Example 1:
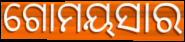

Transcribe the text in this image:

ଗୋମୟସାର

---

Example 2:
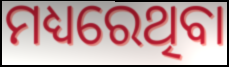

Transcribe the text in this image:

ମଧ୍ୟରେଥିବା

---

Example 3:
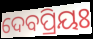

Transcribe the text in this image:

ଦେବପ୍ରିୟଃ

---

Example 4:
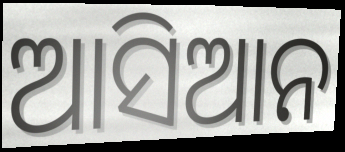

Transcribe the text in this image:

ଆସିଆନ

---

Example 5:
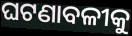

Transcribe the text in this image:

ଘଟଣାବଳୀକୁ